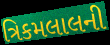
ત્રિકમલાલની